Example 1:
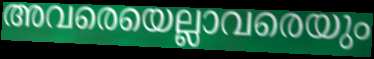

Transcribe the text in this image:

അവരെയെല്ലാവരെയും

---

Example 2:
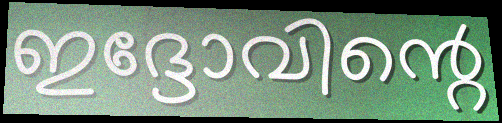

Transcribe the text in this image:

ഇദ്ദോവിന്റെ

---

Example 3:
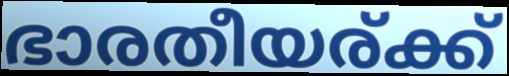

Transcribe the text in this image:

ഭാരതീയര്ക്ക്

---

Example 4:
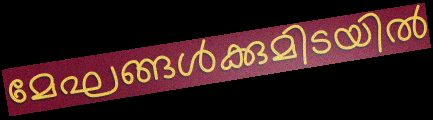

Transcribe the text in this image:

മേഘങ്ങൾക്കുമിടയിൽ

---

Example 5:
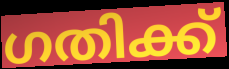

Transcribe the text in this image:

ഗതിക്ക്